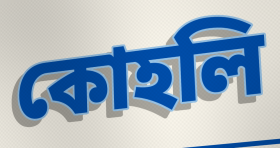
কোহলি